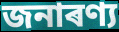
জনাৰণ্য